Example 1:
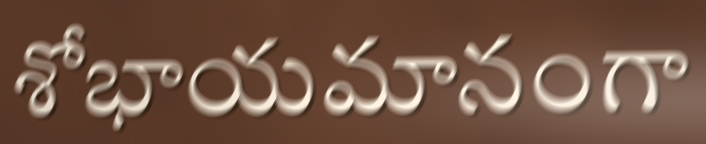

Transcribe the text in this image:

శోభాయమానంగా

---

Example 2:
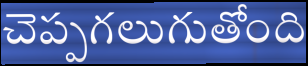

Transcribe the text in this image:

చెప్పగలుగుతోంది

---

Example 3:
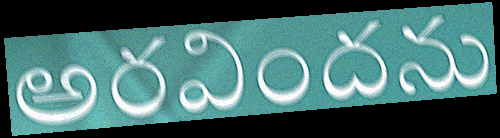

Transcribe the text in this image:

అరవిందను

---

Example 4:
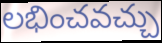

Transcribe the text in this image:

లభించవచ్చు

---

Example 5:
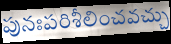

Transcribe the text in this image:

పునఃపరిశీలించవచ్చు